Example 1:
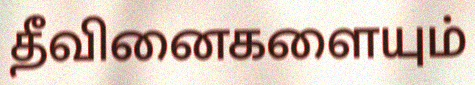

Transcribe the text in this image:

தீவினைகளையும்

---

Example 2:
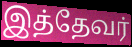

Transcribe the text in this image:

இத்தேவர்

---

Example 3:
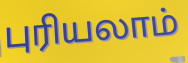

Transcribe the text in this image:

புரியலாம்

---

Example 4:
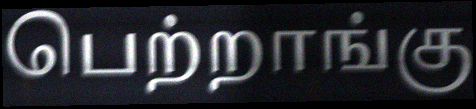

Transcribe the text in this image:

பெற்றாங்கு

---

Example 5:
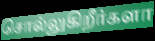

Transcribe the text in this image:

சொல்லுகிறீர்களா